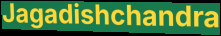
Jagadishchandra